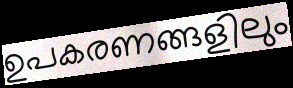
ഉപകരണങ്ങളിലും